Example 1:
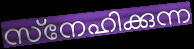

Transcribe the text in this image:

സ്‌നേഹിക്കുന്ന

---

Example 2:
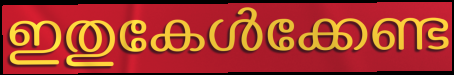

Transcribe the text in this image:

ഇതുകേൾക്കേണ്ട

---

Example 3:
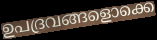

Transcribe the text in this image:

ഉപദ്രവങ്ങളൊക്കെ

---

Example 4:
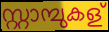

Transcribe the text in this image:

സ്റ്റാമ്പുകള്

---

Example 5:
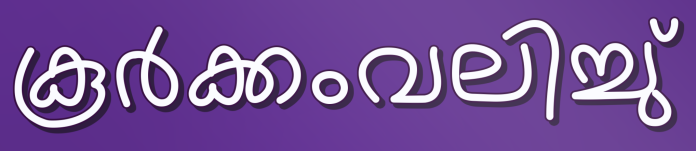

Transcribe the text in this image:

കൂർക്കംവലിച്ചു്